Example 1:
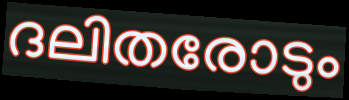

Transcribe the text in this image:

ദലിതരോടും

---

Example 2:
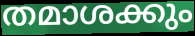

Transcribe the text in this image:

തമാശക്കും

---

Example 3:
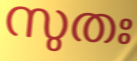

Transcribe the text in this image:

സുതഃ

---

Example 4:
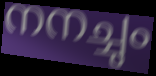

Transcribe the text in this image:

നനച്ചും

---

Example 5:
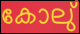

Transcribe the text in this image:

കോലു്